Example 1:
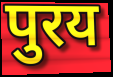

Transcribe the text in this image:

पुरय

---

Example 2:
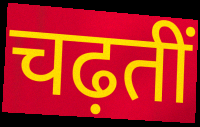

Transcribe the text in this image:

चढ़तीं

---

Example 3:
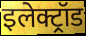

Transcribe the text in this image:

इलेक्ट्रॉड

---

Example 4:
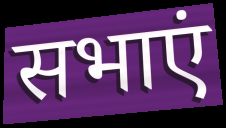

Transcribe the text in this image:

सभाएं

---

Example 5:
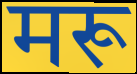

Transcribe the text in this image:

मरू